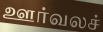
ஊர்வலச்